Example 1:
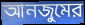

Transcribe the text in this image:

আনজুমের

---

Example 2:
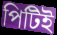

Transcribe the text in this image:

পিটিই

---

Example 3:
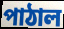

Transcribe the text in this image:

পাঠাল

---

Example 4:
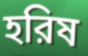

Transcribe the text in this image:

হরিষ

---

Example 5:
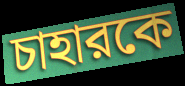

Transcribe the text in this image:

চাহারকে